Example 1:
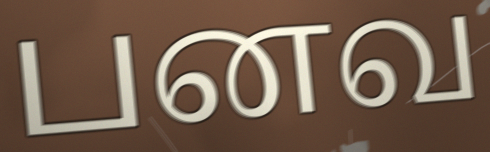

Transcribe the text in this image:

பனவ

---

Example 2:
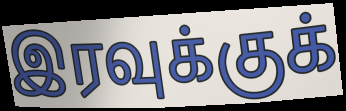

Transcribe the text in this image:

இரவுக்குக்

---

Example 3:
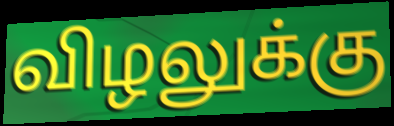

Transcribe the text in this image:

விழலுக்கு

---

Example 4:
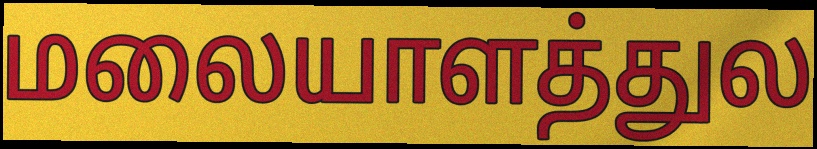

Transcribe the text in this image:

மலையாளத்துல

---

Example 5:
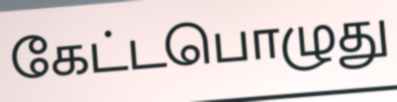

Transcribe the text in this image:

கேட்டபொழுது